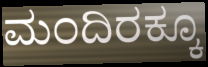
ಮಂದಿರಕ್ಕೂ